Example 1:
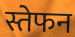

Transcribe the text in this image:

स्तेफन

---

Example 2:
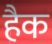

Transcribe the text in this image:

हैक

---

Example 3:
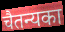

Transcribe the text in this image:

चैतन्यका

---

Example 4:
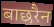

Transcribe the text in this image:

बाछरैन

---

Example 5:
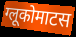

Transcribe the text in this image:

ग्लूकोमाटस